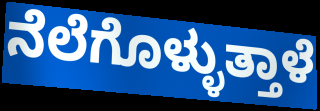
ನೆಲೆಗೊಳ್ಳುತ್ತಾಳೆ